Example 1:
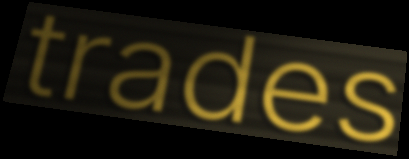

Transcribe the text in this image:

trades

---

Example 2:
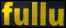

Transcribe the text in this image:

fullu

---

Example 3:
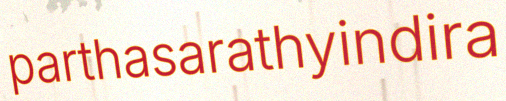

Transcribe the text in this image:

parthasarathyindira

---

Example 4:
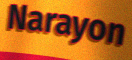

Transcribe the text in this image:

Narayon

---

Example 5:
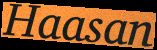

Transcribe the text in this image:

Haasan